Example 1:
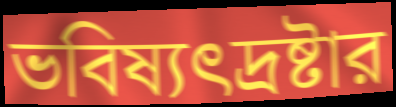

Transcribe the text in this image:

ভবিষ্যৎদ্রষ্টার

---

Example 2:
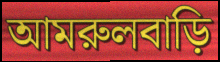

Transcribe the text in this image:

আমরুলবাড়ি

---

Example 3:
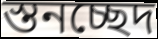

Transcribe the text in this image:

স্তনচ্ছেদ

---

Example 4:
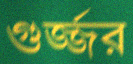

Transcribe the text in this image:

গুর্জ্জর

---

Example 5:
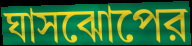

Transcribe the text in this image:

ঘাসঝোপের